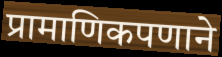
प्रामाणिकपणाने